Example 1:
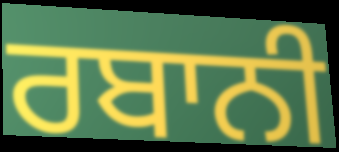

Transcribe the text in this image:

ਰਬਾਨੀ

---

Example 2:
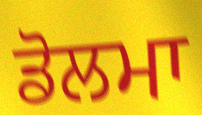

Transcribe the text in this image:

ਡੋਲਮਾ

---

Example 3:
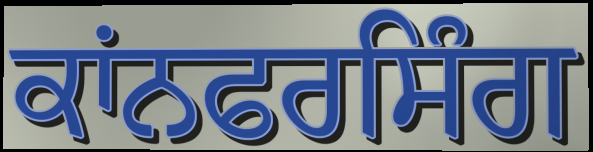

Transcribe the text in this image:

ਕਾਂਨਫਰਸਿੰਗ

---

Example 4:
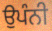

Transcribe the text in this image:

ਉਪੰਨੀ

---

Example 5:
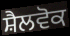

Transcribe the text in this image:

ਸ਼ੈਲਵੋਕ